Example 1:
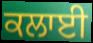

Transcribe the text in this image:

ਕਲਾਈ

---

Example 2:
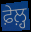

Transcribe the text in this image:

ਫ਼ੇਲ਼੍ਹ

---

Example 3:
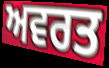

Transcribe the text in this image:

ਅਵਰਤ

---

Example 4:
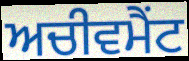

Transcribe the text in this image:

ਅਚੀਵਮੈਂਟ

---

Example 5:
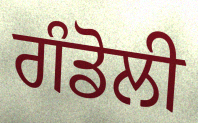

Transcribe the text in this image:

ਗੰਡੋਲੀ